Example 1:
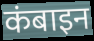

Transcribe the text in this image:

कंबाइन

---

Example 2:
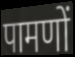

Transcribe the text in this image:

पामणों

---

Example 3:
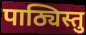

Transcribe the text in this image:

पाठ्यिस्तु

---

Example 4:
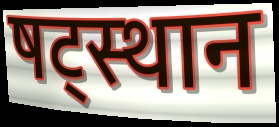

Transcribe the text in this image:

षट्स्थान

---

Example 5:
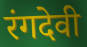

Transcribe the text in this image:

रंगदेवी